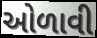
ઓળાવી